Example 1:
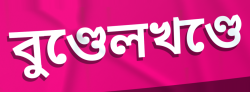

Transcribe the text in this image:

বুণ্ডেলখণ্ডে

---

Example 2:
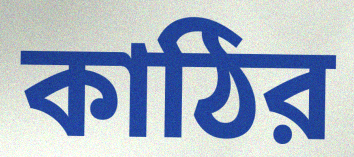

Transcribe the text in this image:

কাঠির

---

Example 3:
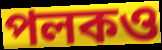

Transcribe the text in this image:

পলকও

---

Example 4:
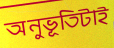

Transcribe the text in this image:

অনুভূতিটাই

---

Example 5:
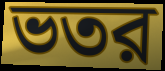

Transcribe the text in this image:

ভতর